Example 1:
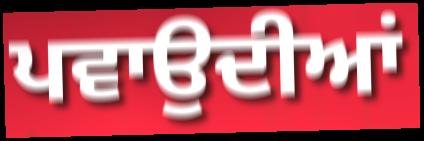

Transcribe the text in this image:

ਪਵਾਉਦੀਆਂ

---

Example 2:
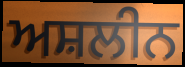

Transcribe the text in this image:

ਅਸ਼ਲੀਨ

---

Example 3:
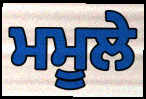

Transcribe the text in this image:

ਮਮੂਲੇ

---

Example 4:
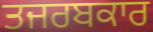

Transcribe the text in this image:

ਤਜਰਬਕਾਰ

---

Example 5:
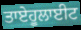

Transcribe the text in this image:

ਤਾਏਹੂਲਾਈਟ